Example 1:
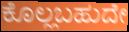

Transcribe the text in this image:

ಕೊಲ್ಲಬಹುದೇ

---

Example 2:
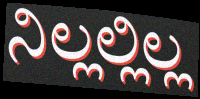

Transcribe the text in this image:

ನಿಲ್ಲಲ್ಲಿಲ್ಲ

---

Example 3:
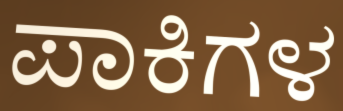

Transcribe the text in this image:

ಪಾಕಿಗಳ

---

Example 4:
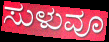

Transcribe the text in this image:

ಸುಳುವೂ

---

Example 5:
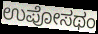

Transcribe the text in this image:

ಉಪೋಸಥಂ